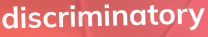
discriminatory